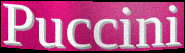
Puccini